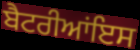
ਬੈਟਰੀਆਂਇਸ